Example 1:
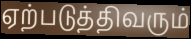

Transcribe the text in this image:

ஏற்படுத்திவரும்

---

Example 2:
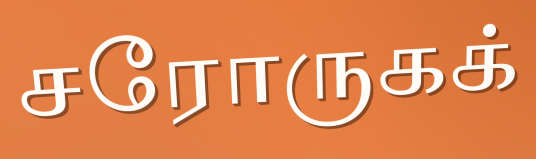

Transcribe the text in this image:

சரோருகக்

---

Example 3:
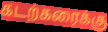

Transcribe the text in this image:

கடற்கரைக்கு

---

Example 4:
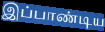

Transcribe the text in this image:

இப்பாண்டிய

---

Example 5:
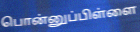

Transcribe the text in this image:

பொன்னுப்பிள்ளை